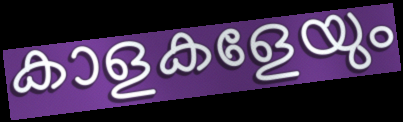
കാളകളേയും